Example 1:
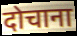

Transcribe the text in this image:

दोचाना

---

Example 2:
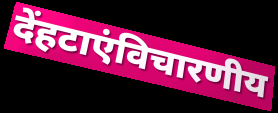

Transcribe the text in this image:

देंहटाएंविचारणीय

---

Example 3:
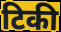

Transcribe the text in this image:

टिकी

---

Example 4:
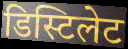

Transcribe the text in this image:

डिस्टिलेट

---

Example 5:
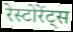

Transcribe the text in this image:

रेस्टोरेंट्स